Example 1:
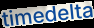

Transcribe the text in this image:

timedelta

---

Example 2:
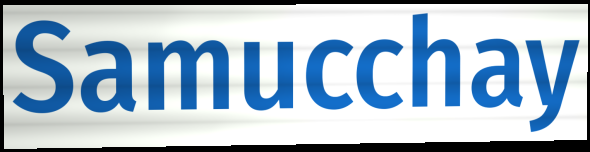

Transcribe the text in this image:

Samucchay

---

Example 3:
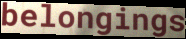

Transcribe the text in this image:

belongings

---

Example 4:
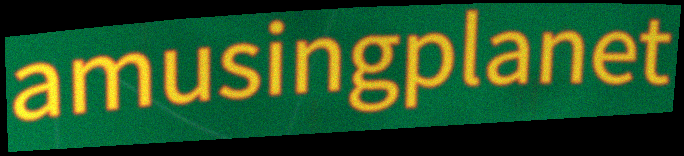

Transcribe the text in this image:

amusingplanet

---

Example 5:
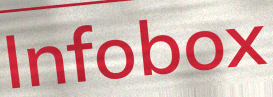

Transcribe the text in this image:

Infobox